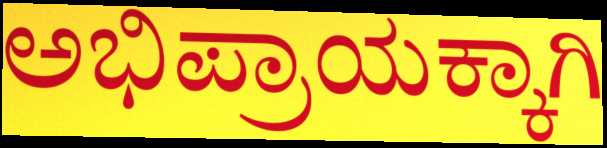
ಅಭಿಪ್ರಾಯಕ್ಕಾಗಿ